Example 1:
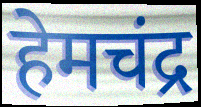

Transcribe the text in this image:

हेमचंद्र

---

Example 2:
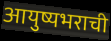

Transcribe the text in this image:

आयुष्यभराची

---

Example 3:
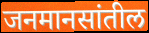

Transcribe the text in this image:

जनमानसांतील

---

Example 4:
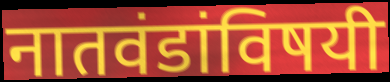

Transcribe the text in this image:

नातवंडांविषयी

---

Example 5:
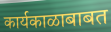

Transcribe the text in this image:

कार्यकाळाबाबत